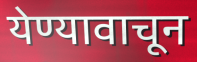
येण्यावाचून